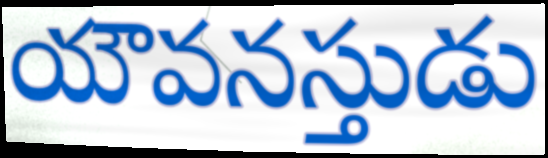
యౌవనస్తుడు